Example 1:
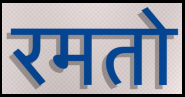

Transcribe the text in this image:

रमतो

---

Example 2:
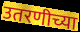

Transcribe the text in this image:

उतरणीच्या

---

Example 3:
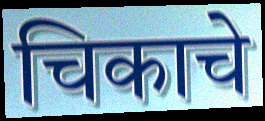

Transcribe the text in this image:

चिकाचे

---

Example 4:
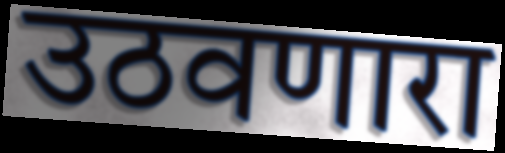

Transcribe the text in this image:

उठवणारा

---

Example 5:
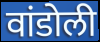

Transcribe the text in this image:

वांडोली